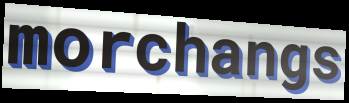
morchangs